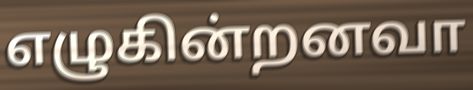
எழுகின்றனவா